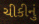
ચીકીનું